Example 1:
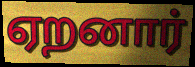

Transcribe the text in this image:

ஏறனார்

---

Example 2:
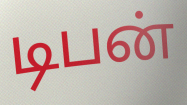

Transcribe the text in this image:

டிபன்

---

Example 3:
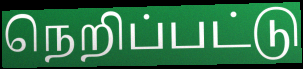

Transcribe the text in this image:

நெறிப்பட்டு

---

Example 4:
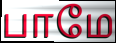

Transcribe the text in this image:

பாமே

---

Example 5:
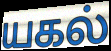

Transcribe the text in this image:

யகல்